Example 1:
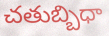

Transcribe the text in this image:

చతుబ్బిధా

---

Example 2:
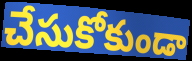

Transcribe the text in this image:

చేసుకోకుండా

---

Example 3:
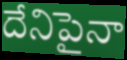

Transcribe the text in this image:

దేనిపైనా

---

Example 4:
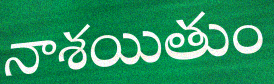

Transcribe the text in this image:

నాశయితుం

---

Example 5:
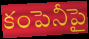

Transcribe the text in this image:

కంపెనీపై